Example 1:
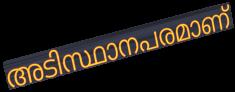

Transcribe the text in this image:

അടിസ്ഥാനപരമാണ്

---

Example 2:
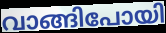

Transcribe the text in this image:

വാങ്ങിപോയി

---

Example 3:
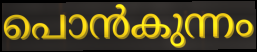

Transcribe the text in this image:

പൊൻകുന്നം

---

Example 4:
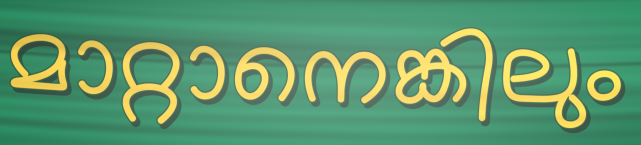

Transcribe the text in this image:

മാറ്റാനെങ്കിലും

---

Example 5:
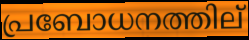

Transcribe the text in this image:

പ്രബോധനത്തില്